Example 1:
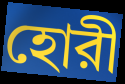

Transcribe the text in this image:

হোরী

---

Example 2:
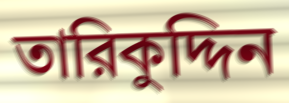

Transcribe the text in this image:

তারিকুদ্দিন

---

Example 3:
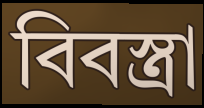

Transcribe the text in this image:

বিবস্ত্রা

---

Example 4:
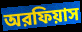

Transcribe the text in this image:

অরফিয়াস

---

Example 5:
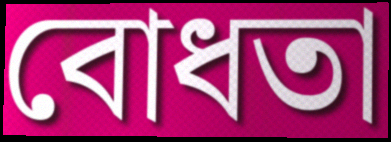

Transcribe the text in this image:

বোধতা